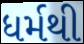
ધર્મથી